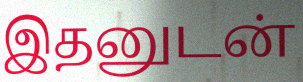
இதனுடன்